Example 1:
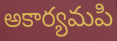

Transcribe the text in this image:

అకార్యమపి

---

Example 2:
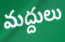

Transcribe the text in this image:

మద్దులు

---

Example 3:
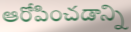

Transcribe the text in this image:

ఆరోపించడాన్ని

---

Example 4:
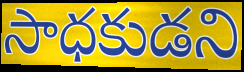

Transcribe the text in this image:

సాధకుడని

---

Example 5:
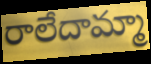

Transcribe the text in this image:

రాలేదామ్మా